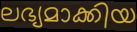
ലഭ്യമാക്കിയ